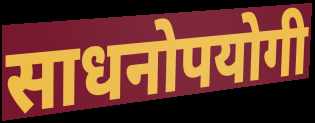
साधनोपयोगी